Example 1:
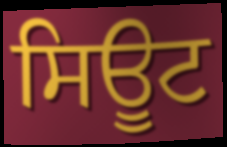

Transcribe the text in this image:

ਸਿਊਟ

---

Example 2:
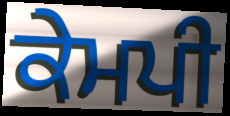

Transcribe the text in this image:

ਕੇਮਪੀ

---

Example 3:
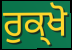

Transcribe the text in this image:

ਰੁਕ੍ਖੋ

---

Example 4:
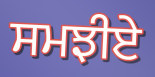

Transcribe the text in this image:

ਸਮਝੀਏ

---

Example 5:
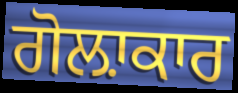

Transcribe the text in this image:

ਗੋਲ਼ਾਕਾਰ